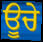
ਊਚੇ